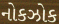
નોકઝોક